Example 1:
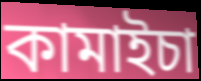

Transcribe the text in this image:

কামাইচা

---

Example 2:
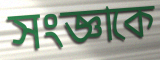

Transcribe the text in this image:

সংজ্ঞাকে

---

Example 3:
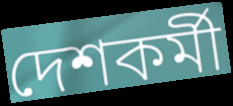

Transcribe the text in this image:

দেশকর্মী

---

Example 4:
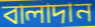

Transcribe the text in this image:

বালাদান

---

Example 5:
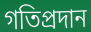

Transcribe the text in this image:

গতিপ্রদান